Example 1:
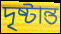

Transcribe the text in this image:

দৃষ্টান্ত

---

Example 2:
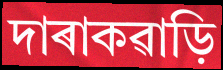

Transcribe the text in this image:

দাৰাকৱাড়ি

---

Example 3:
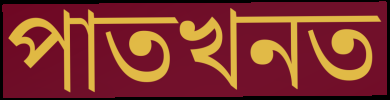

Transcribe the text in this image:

পাতখনত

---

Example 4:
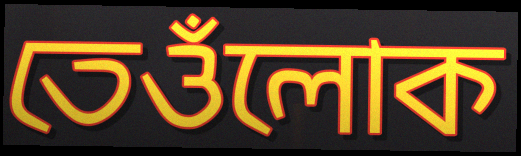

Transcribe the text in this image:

তেওঁলোক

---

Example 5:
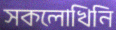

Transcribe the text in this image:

সকলোখিনি